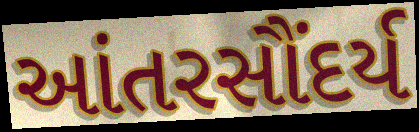
આંતરસૌંદર્ય